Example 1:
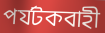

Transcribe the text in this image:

পর্যটকবাহী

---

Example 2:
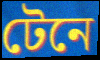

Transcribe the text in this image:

টেনে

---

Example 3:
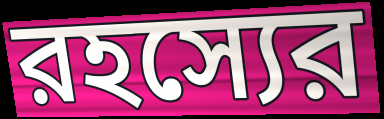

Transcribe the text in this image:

রহস্যের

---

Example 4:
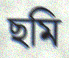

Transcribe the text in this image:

ছমি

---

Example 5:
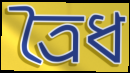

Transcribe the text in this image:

ত্রৈধ